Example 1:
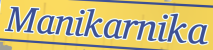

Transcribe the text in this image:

Manikarnika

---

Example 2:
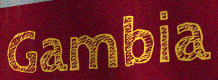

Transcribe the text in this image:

Gambia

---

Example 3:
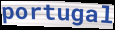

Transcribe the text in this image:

portugal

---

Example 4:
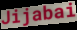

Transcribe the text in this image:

Jijabai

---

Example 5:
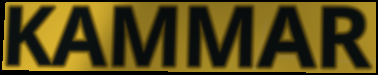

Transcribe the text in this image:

KAMMAR